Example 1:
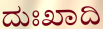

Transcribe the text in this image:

ದುಃಖಾದಿ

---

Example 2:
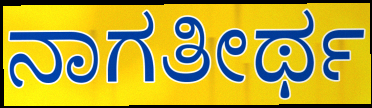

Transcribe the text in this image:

ನಾಗತೀರ್ಥ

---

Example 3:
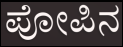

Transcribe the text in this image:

ಪೋಪಿನ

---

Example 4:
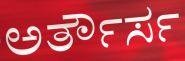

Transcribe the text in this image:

ಅರ್ತೌರ್ಸ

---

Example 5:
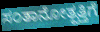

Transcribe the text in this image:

ಸಂತಾನೋತ್ಪತ್ತಿಗೆ